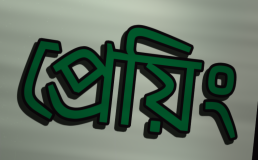
প্রেয়িং